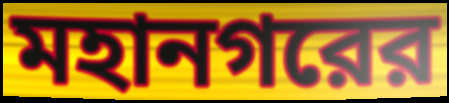
মহানগরের